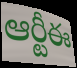
ఆర్టీఈ